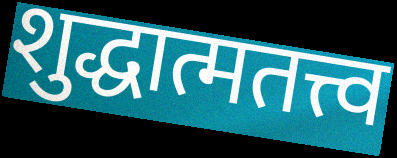
शुद्धात्मतत्त्व